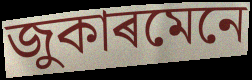
জুকাৰমেনে